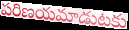
పరిణయమాడుటకు